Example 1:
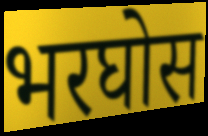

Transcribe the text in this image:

भरघोस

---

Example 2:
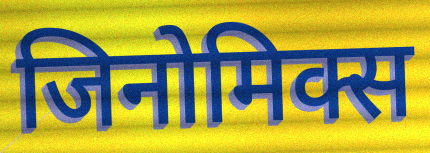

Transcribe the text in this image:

जिनोमिक्स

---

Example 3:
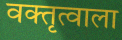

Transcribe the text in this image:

वक्तृत्वाला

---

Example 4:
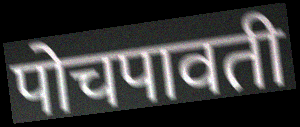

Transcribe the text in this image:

पोचपावती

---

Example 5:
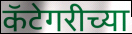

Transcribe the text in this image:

कॅटेगरीच्या